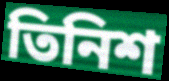
তিনিশ